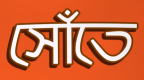
সোঁতে